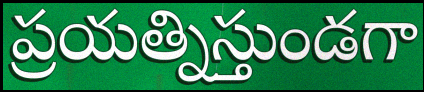
ప్రయత్నిస్తుండగా